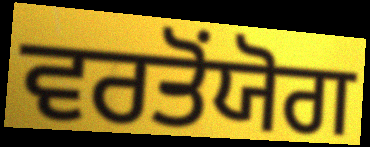
ਵਰਤੋਂਯੋਗ